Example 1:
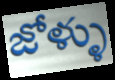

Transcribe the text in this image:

జోళ్ళు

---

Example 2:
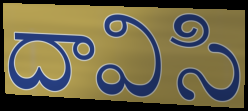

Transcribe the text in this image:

దావిసి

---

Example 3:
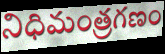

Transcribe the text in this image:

నిధిమంత్రగణం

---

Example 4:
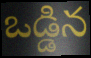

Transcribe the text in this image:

ఒడ్డిన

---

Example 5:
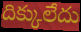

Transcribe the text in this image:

దిక్కులేదు